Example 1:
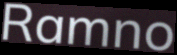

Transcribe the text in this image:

Ramno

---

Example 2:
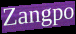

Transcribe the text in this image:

Zangpo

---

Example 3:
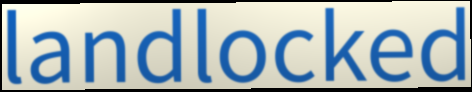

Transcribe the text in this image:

landlocked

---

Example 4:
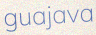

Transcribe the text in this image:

guajava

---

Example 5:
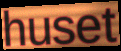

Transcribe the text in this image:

huset